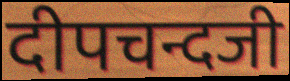
दीपचन्दजी